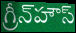
గ్రీన్‌హౌస్